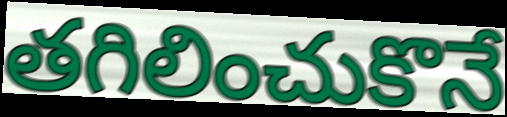
తగిలించుకొనే